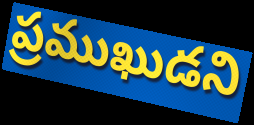
ప్రముఖుడని